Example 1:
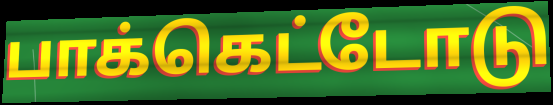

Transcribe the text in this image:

பாக்கெட்டோடு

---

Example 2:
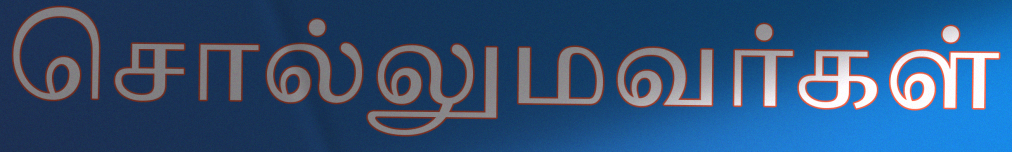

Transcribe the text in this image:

சொல்லுமவர்கள்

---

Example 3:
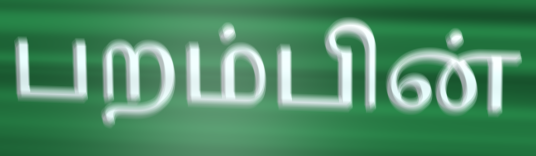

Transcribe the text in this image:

பறம்பின்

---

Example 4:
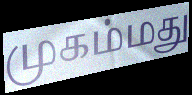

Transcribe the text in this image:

முகம்மது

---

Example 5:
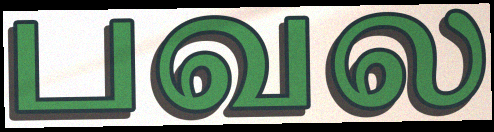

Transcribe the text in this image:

பவல